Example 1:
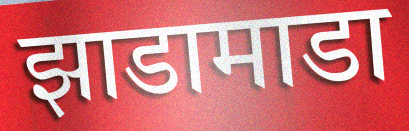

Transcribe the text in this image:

झाडामाडा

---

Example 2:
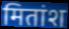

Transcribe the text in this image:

मितांश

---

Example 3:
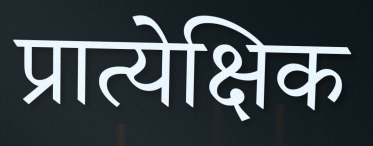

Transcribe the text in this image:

प्रात्येक्षिक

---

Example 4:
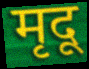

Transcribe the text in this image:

मृदू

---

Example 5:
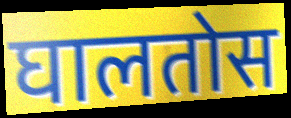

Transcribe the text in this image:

घालतोस